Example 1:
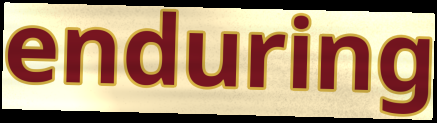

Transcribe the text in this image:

enduring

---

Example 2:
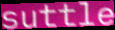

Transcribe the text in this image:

suttle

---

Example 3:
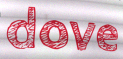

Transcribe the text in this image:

dove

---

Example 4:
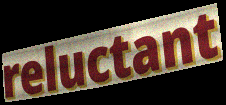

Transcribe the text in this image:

reluctant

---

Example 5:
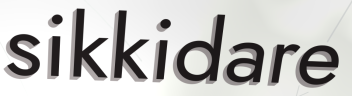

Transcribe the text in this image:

sikkidare